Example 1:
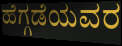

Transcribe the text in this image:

ಹೆಗ್ಗಡೆಯವರ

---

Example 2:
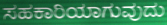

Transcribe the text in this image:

ಸಹಕಾರಿಯಾಗುವುದು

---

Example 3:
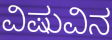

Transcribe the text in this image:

ವಿಷುವಿನ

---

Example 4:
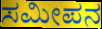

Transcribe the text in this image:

ಸಮೀಪನ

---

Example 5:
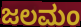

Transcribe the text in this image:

ಜಲಮಂ